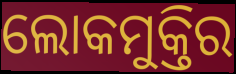
ଲୋକମୁକ୍ତିର